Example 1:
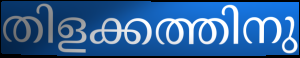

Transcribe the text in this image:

തിളക്കത്തിനു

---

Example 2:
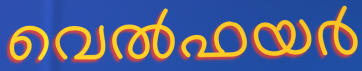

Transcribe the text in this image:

വെൽഫയർ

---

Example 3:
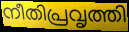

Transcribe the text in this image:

നീതിപ്രവൃത്തി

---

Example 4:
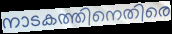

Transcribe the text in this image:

നാടകത്തിനെതിരെ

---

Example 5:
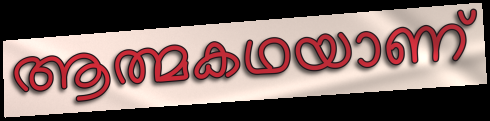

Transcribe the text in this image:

ആത്മകഥയാണ്